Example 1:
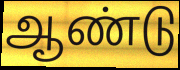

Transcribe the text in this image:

ஆண்டு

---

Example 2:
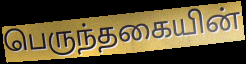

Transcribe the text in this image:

பெருந்தகையின்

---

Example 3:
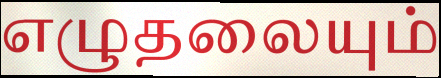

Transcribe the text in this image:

எழுதலையும்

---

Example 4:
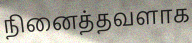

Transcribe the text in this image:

நினைத்தவளாக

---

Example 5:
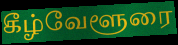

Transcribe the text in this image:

கீழ்வேளூரை